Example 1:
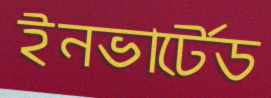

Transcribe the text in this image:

ইনভার্টেড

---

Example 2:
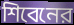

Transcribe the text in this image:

শিবেনের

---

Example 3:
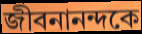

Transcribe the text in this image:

জীবনানন্দকে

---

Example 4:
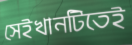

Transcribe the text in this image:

সেইখানটিতেই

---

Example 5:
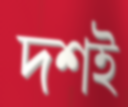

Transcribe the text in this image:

দশই